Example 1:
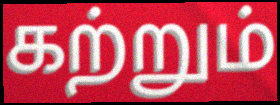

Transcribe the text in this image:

கற்றும்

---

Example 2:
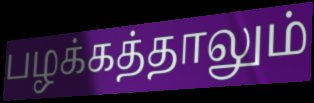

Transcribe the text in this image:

பழக்கத்தாலும்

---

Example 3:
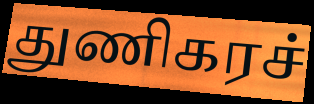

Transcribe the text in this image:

துணிகரச்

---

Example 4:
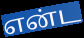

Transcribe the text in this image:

என்ட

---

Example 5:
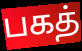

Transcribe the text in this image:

பகத்